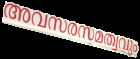
അവസരസമത്വവും